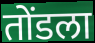
तोंडला